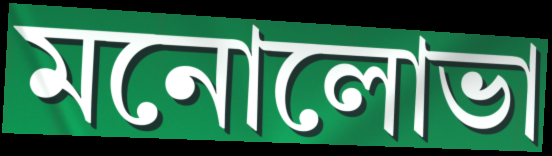
মনোলোভা